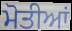
ਮੋਤੀਆਂ